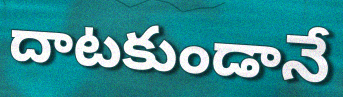
దాటకుండానే